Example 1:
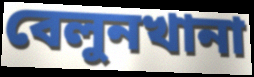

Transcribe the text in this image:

বেলুনখানা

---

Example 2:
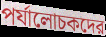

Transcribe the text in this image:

পর্যালোচকদের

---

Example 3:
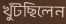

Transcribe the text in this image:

খুঁটছিলেন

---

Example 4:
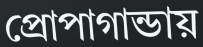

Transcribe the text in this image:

প্রোপাগান্ডায়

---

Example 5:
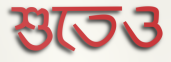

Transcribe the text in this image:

শুতেও